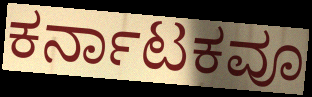
ಕರ್ನಾಟಕವೂ